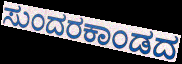
ಸುಂದರಕಾಂಡದ